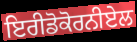
ਇਰੀਡੋਕੋਰਨੀਏਲ